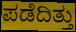
ಪಡೆದಿತ್ತು